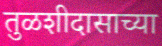
तुळशीदासाच्या